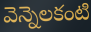
వెన్నెలకంటి